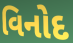
વિનોદ